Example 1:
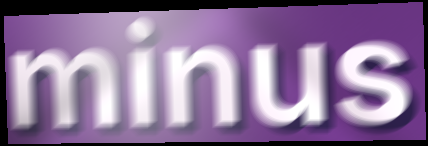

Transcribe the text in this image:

minus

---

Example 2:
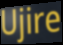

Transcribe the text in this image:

Ujire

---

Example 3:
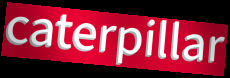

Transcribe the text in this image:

caterpillar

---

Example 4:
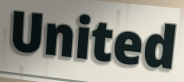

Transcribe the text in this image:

United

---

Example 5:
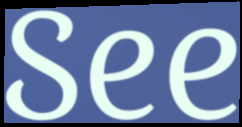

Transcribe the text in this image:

See